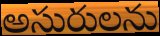
అసురులను